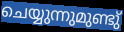
ചെയ്യുന്നുമുണ്ടു്